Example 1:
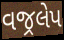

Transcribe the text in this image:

વજ્રલેપ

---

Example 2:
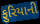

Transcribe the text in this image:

ફુરિયાની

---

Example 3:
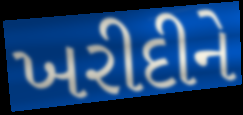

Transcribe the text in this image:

ખરીદીને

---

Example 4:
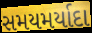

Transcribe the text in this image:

સમયમર્યાદા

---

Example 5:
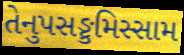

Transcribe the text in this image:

તેનુપસઙ્કમિસ્સામ